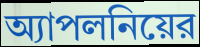
অ্যাপলনিয়ের